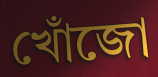
খোঁজো